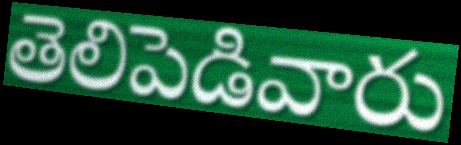
తెలిపెడివారు